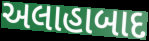
અલાહાબાદ